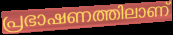
പ്രഭാഷണത്തിലാണ്